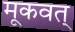
मूकवत्